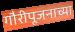
गौरीपूजनाच्या